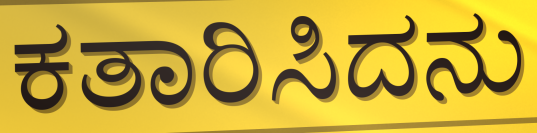
ಕತಾರಿಸಿದನು